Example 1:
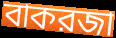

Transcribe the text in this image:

বাকরজা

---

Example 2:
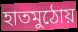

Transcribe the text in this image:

হাতমুঠোয়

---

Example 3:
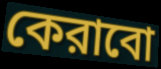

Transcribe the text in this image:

কেরাবো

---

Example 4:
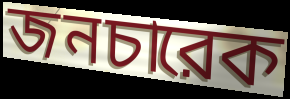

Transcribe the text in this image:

জনচারেক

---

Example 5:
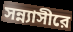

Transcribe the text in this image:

সন্ন্যাসীরে